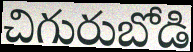
చిగురుబోడి